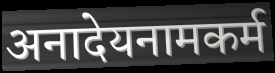
अनादेयनामकर्म